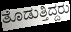
ತೊಡುತ್ತಿದ್ದರು